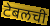
टेबलची